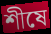
শীষে